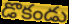
డొకండు